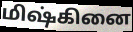
மிஷ்கினை